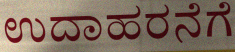
ಉದಾಹರನೆಗೆ